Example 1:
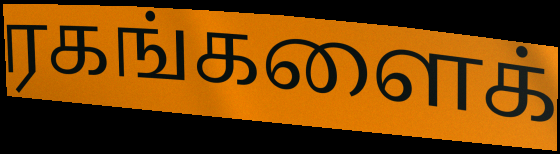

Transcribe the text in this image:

ரகங்களைக்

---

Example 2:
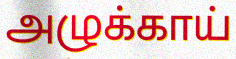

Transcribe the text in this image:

அழுக்காய்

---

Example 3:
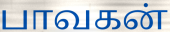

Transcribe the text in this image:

பாவகன்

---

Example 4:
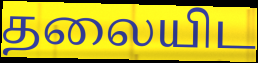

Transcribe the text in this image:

தலையிட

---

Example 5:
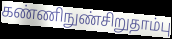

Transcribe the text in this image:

கண்ணிநுண்சிறுதாம்பு